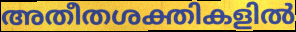
അതീതശക്തികളിൽ